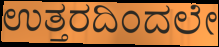
ಉತ್ತರದಿಂದಲೇ